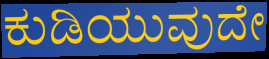
ಕುಡಿಯುವುದೇ